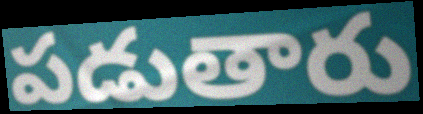
పడుతారు